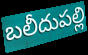
బలీదుపల్లి